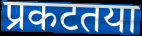
प्रकटतया